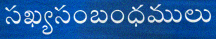
సఖ్యసంబంధములు